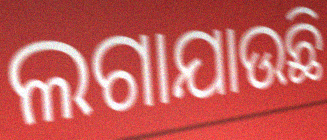
ଲଗାଯାଉଛି